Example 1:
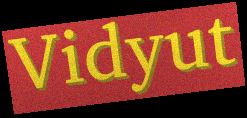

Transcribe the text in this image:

Vidyut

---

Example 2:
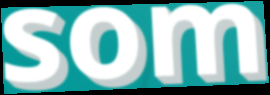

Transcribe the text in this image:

som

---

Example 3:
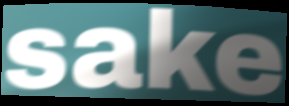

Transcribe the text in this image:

sake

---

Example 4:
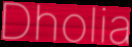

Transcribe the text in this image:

Dholia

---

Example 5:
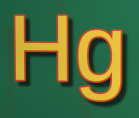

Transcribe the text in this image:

Hg